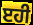
ੲਹੀ